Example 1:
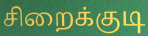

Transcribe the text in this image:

சிறைக்குடி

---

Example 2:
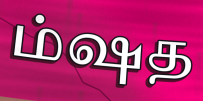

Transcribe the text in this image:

ம்ஷத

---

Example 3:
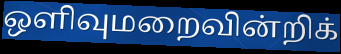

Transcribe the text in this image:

ஒளிவுமறைவின்றிக்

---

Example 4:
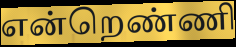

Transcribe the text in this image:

என்றெண்ணி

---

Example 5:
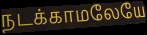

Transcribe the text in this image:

நடக்காமலேயே